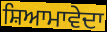
ਸ਼ਿਆਮਾਵੇਦਾ